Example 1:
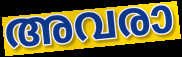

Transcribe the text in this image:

അവരാ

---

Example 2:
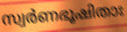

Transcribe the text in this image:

സ്വർണഭൂഷിതാഃ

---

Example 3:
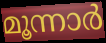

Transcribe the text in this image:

മൂന്നാർ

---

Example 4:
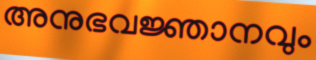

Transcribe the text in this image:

അനുഭവജ്ഞാനവും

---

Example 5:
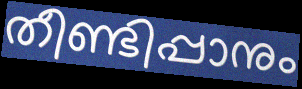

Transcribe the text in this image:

തീണ്ടിപ്പാനും